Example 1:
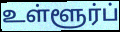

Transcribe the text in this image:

உள்ளூர்ப்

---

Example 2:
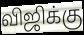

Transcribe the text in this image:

விஜிக்கு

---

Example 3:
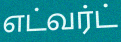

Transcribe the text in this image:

எட்வர்ட்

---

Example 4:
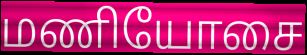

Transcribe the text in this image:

மணியோசை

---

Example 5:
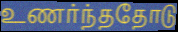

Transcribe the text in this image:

உணர்ந்ததோடு